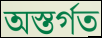
অস্তর্গত